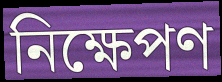
নিক্ষেপণ